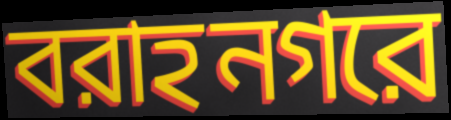
বরাহনগরে